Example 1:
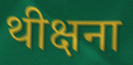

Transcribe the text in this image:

थीक्षना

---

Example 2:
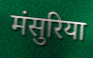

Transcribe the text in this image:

मंसुरिया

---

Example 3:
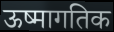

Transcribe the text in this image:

ऊष्मागतिक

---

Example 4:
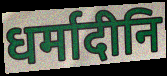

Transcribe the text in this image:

धर्मादीनि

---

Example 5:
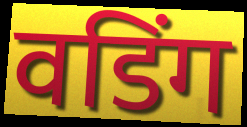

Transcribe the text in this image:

वडिंग